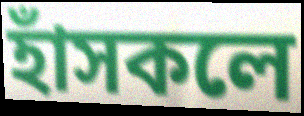
হাঁসকলে